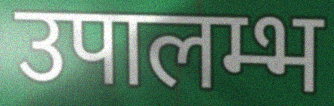
उपालम्भ